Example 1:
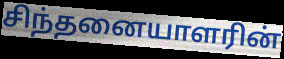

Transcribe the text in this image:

சிந்தனையாளரின்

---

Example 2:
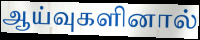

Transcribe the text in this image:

ஆய்வுகளினால்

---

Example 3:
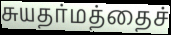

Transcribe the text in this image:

சுயதர்மத்தைச்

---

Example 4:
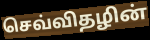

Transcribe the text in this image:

செவ்விதழின்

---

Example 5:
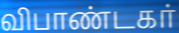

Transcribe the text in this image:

விபாண்டகர்